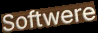
Softwere